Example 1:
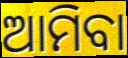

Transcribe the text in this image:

ଆମିବା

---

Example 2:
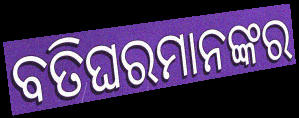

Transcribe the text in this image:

ବତିଘରମାନଙ୍କର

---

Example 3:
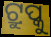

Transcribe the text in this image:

ଟ୍ରୁପ୍କୁ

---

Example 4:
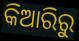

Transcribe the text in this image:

କିଆରିରୁ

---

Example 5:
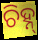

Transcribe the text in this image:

ଚିହ୍ନ୍